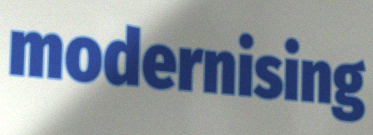
modernising